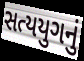
સત્યયુગનું